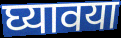
घ्यावया